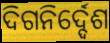
ଦିଗନିର୍ଦ୍ଦେଶ